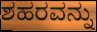
ಶಹರವನ್ನು